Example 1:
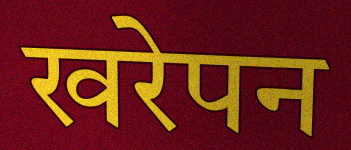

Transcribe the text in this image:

खरेपन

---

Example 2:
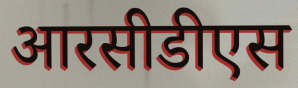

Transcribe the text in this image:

आरसीडीएस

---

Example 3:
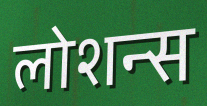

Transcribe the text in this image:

लोशन्स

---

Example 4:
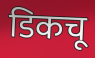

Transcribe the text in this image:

डिकचू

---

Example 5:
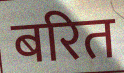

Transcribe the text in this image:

बरित